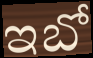
ఇబో